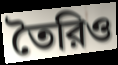
তৈরিও